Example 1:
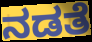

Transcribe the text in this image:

ನಡತೆ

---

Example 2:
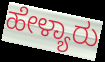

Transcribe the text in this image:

ಹೇಳ್ಯಾರು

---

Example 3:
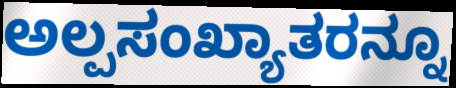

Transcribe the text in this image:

ಅಲ್ಪಸಂಖ್ಯಾತರನ್ನೂ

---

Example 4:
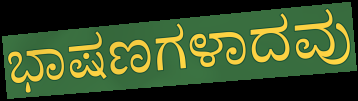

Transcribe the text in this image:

ಭಾಷಣಗಳಾದವು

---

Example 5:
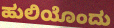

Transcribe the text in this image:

ಹುಲಿಯೊಂದು